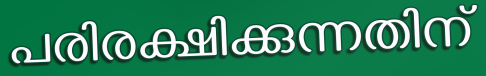
പരിരക്ഷിക്കുന്നതിന്